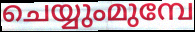
ചെയ്യുംമുമ്പേ